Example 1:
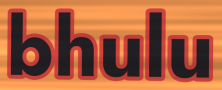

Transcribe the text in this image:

bhulu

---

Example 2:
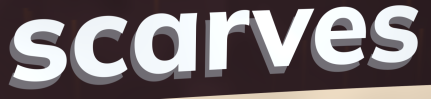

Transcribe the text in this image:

scarves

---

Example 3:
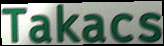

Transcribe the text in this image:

Takacs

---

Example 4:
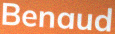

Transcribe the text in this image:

Benaud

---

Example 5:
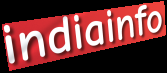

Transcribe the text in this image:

indiainfo